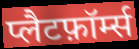
प्लैटफ़ॉर्म्स